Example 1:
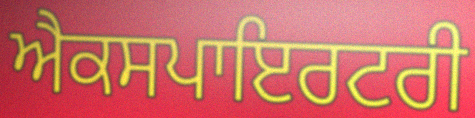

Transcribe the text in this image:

ਐਕਸਪਾਇਰਟਰੀ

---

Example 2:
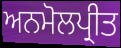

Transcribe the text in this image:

ਅਨਮੋਲਪ੍ਰੀਤ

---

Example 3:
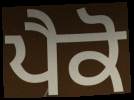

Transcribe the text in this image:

ਪੈਕੋ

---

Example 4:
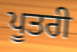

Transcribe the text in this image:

ਪੂਤਰੀ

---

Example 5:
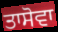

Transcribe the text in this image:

ਤਾਸੋਵਾ